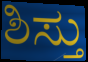
ಶಿಸ್ತು